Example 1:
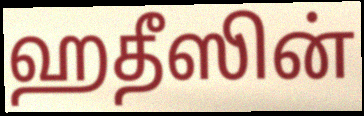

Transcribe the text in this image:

ஹதீஸின்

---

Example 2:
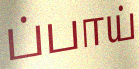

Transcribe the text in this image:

ப்பாய்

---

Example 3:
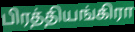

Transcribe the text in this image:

பிரத்தியங்கிரா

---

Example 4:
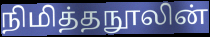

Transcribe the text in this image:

நிமித்தநூலின்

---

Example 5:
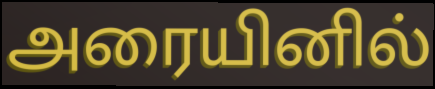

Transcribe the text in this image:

அரையினில்